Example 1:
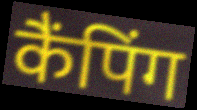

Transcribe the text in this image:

कैंपिंग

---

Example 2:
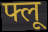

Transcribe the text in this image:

फ्लू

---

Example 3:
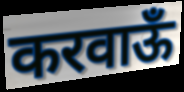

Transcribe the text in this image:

करवाऊँ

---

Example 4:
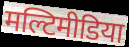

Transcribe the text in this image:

मल्टिमीडिया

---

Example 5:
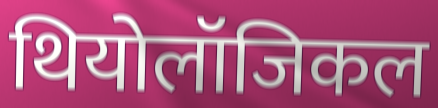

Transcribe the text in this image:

थियोलॉजिकल